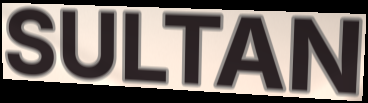
SULTAN